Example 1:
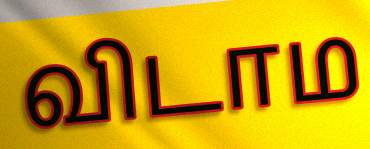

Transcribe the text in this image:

விடாம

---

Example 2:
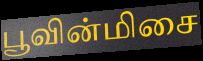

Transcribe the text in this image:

பூவின்மிசை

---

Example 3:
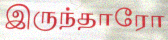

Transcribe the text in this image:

இருந்தாரோ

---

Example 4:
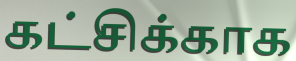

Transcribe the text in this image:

கட்சிக்காக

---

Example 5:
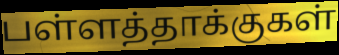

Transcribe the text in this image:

பள்ளத்தாக்குகள்